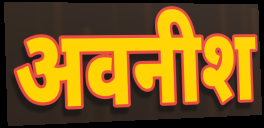
अवनीश